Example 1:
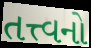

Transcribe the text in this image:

તત્ત્વનો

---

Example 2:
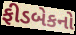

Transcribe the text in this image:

ફીડબેકનો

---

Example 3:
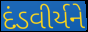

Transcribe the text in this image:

દંડવીર્યને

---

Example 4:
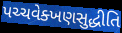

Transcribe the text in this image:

પચ્ચવેક્ખણસુદ્ધીતિ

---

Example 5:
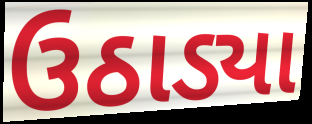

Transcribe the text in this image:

ઉઠાડ્યા